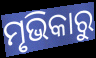
ମୃଭିକାରୁ